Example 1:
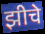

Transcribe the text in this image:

झीचे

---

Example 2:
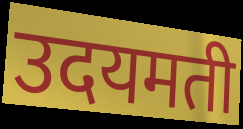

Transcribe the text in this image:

उदयमती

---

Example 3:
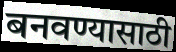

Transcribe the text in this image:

बनवण्‍यासाठी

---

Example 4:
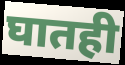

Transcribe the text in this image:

घातही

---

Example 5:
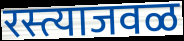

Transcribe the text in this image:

रस्त्याजवळ